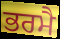
ਭਰਮੈ